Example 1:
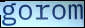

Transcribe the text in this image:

gorom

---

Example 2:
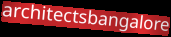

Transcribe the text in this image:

architectsbangalore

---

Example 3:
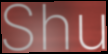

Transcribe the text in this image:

Shu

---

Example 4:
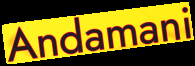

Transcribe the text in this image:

Andamani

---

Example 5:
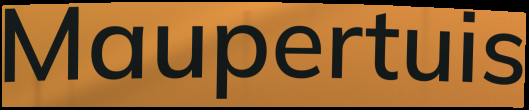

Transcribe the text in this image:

Maupertuis